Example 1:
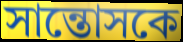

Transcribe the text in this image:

সান্তোসকে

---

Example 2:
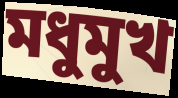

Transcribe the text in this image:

মধুমুখ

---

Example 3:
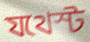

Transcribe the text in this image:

যথেস্ট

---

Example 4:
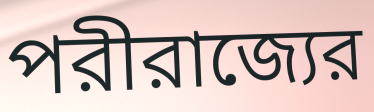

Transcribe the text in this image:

পরীরাজ্যের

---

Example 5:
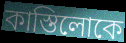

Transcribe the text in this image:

কাস্তিলোকে